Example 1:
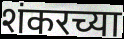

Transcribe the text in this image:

शंकरच्या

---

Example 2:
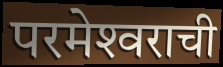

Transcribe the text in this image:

परमेश्‍वराची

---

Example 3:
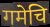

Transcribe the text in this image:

गमेचि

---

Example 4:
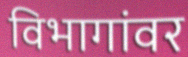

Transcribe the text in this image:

विभागांवर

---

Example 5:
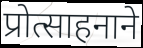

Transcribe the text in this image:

प्रोत्साहनाने